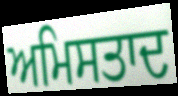
ਅਮਿਸਤਾਦ